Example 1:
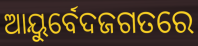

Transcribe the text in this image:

ଆୟୁର୍ବେଦଜଗତରେ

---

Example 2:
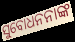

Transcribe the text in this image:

ସୁବୋଧନନାଙ୍କ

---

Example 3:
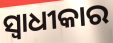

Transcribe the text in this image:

ସ୍ୱାଧୀକାର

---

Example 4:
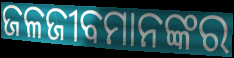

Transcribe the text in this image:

ଜଳଜୀବମାନଙ୍କର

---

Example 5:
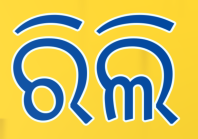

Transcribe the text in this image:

ରିଲି